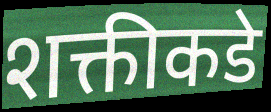
शक्तीकडे